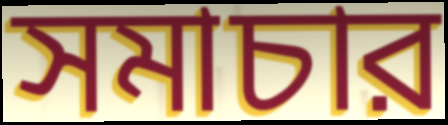
সমাচার